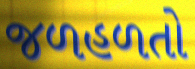
જળહળતો